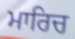
ਮਾਰਿਚ